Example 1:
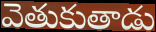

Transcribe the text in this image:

వెతుకుతాడు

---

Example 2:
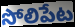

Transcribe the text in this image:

సోలిపేట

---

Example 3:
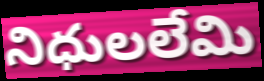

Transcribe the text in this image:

నిధులలేమి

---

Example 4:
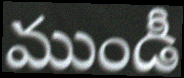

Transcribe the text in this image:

ముండీ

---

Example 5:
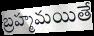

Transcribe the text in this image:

బ్రహ్మమయితే